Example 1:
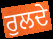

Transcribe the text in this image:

ਰੁਲਦੇ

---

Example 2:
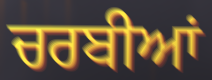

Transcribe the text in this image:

ਚਰਬੀਆਂ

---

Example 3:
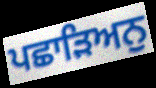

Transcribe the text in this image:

ਪਛਾੜਿਅਨੁ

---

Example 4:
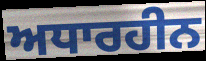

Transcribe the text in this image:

ਅਧਾਰਹੀਨ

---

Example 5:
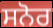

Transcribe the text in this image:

ਸਨੋਰ